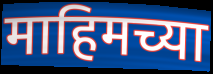
माहिमच्या